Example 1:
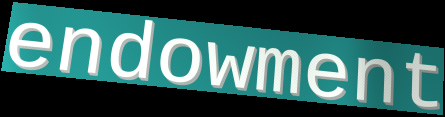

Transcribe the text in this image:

endowment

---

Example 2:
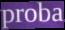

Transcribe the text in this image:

proba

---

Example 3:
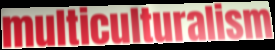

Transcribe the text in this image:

multiculturalism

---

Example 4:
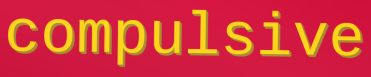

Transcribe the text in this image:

compulsive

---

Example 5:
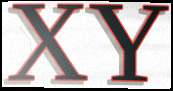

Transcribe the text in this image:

XY